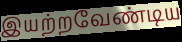
இயற்றவேண்டிய